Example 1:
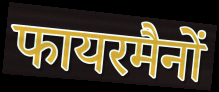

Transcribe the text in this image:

फायरमैनों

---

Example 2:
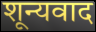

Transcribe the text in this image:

शून्यवाद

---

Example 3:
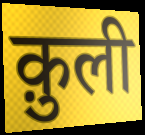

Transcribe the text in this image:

क़ुली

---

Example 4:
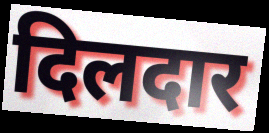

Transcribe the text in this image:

दिलदार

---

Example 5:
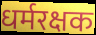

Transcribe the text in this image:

धर्मरक्षक